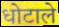
धोटाले